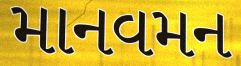
માનવમન